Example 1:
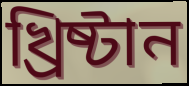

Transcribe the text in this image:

খ্রিষ্টান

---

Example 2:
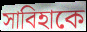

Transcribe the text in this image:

সাবিহাকে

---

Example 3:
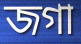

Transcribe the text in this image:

জগা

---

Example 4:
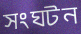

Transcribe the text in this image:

সংঘটন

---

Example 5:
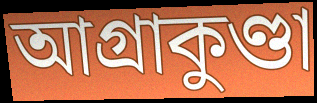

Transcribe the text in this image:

আগ্রাকুণ্ডা